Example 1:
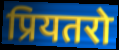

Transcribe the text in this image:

प्रियतरो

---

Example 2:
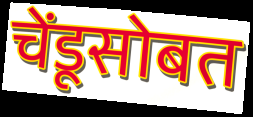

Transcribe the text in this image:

चेंडूसोबत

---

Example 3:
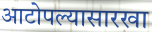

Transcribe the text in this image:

आटोपल्यासारखा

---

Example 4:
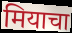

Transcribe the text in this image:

मियाचा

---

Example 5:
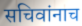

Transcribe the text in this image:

सचिवांनाच